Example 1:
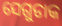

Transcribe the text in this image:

ସେଗୁଡାକ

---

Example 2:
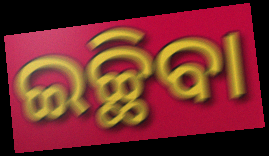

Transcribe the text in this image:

ଇଚ୍ଛିବା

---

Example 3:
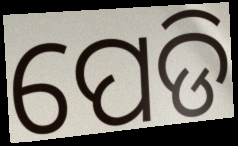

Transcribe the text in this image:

ପେଡି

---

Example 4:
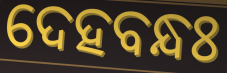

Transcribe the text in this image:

ଦେହବନ୍ଧଃ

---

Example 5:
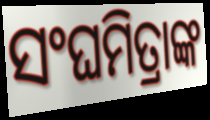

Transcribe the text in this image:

ସଂଘମିତ୍ରାଙ୍କ